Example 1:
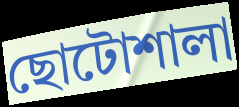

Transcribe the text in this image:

ছোটোশালা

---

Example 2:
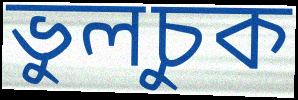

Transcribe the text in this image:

ভুলচুক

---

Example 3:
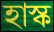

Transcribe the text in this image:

হাস্ক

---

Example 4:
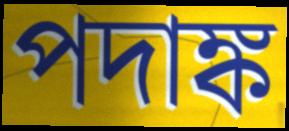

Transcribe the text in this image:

পদাঙ্ক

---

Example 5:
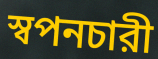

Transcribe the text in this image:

স্বপনচারী